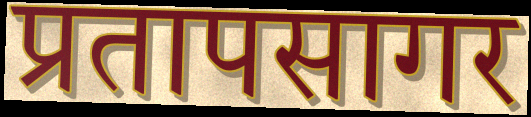
प्रतापसागर